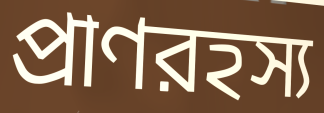
প্রাণরহস্য